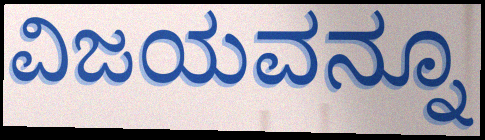
ವಿಜಯವನ್ನೂ